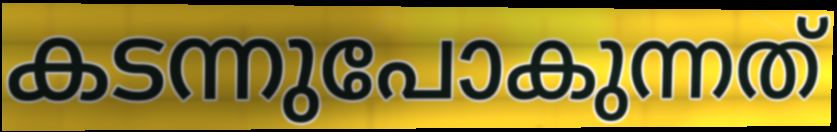
കടന്നുപോകുന്നത്